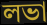
লভা